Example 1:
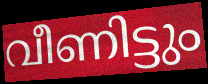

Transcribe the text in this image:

വീണിട്ടും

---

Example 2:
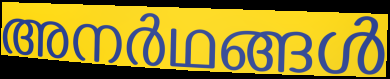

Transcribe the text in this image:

അനർഥങ്ങൾ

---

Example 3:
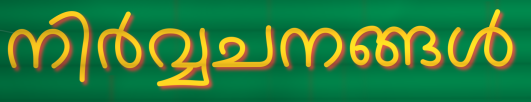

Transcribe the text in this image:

നിർവ്വചനങ്ങൾ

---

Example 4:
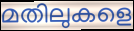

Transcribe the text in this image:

മതിലുകളെ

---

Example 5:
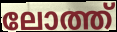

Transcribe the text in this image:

ലോത്ത്